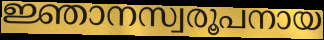
ജ്ഞാനസ്വരൂപനായ